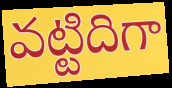
వట్టిదిగా